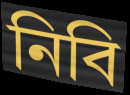
নিবি